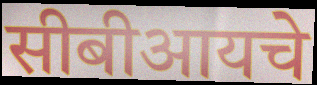
सीबीआयचे